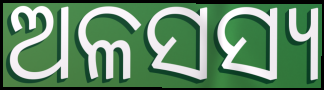
ଅଳସସ୍ୟ